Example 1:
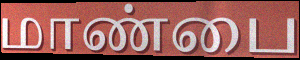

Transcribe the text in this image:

மாண்பை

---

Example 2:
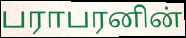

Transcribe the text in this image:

பராபரனின்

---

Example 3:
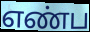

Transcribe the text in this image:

எண்ப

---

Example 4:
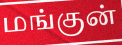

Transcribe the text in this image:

மங்குன்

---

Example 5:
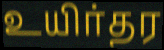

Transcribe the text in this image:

உயிர்தர